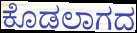
ಕೊಡಲಾಗದ